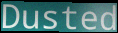
Dusted